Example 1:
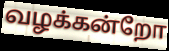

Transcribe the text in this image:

வழக்கன்றோ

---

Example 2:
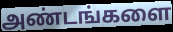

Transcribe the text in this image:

அண்டங்களை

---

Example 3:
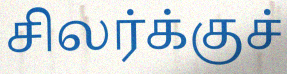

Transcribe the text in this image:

சிலர்க்குச்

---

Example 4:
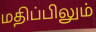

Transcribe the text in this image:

மதிப்பிலும்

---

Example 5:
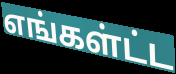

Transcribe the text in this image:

எங்கள்ட்ட